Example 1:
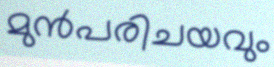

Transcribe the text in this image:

മുൻപരിചയവും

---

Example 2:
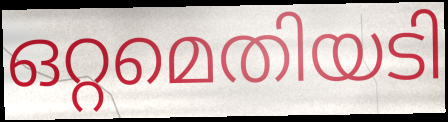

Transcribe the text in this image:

ഒറ്റമെതിയടി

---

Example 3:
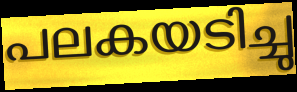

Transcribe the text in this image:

പലകയടിച്ചു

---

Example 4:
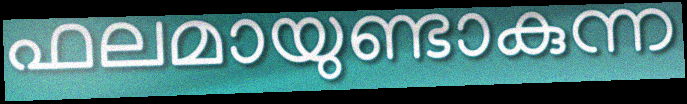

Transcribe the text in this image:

ഫലമായുണ്ടാകുന്ന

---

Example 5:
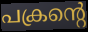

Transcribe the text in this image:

പക്രന്റെ